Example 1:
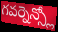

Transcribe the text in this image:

గవర్నెన్స్లో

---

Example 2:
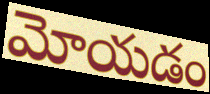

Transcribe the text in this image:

మోయడం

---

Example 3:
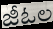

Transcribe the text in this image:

జీఓల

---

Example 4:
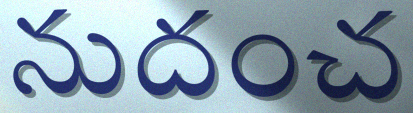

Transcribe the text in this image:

నుదంచ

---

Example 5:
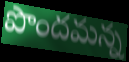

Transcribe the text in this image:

పొందమన్న